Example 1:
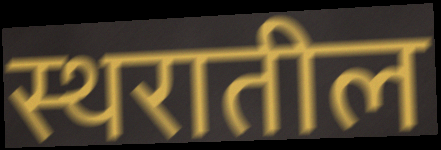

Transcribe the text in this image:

स्थरातील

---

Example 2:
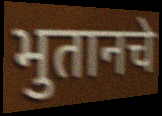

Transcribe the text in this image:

भुतानचे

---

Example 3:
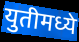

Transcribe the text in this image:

युतीमध्ये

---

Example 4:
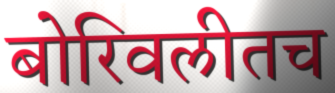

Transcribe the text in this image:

बोरिवलीतच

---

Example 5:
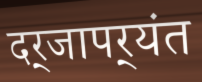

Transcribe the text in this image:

दर्जापर्यंत